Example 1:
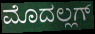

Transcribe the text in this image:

ಮೊದಲ್ಲಗ್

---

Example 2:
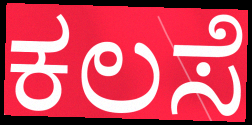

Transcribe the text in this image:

ಕಲಸೆ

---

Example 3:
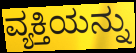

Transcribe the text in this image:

ವ್ಯಕ್ತಿಯನ್ನು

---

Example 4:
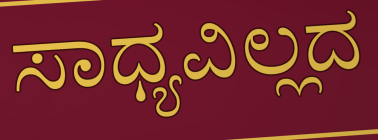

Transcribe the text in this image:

ಸಾಧ್ಯವಿಲ್ಲದ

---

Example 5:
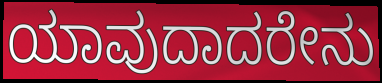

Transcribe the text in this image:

ಯಾವುದಾದರೇನು